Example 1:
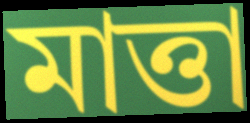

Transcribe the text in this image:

মাত্তা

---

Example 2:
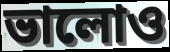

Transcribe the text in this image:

ভালোও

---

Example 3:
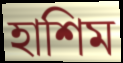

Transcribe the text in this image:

হাশিম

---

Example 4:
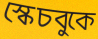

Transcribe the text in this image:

স্কেচবুকে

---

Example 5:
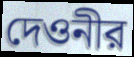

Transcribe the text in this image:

দেওনীর